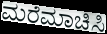
ಮರೆಮಾಚಿಸಿ